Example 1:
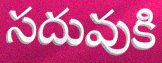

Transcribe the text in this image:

సదువుకి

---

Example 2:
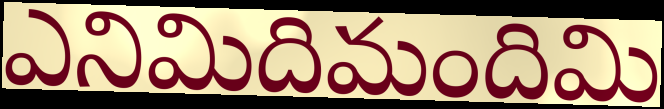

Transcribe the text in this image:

ఎనిమిదిమందిమి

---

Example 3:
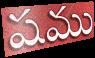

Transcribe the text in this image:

షము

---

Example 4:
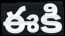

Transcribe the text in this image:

ఈకి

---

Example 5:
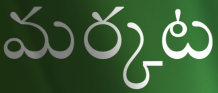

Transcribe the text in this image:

మర్కట